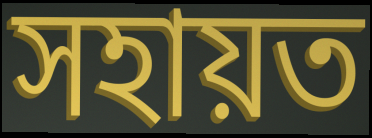
সহায়ত